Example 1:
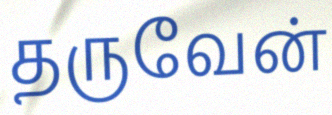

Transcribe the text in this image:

தருவேன்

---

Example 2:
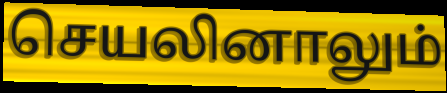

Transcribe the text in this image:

செயலினாலும்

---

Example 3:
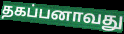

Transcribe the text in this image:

தகப்பனாவது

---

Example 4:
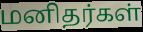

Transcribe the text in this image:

மனிதர்கள்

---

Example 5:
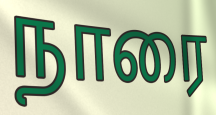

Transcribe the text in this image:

நாரை